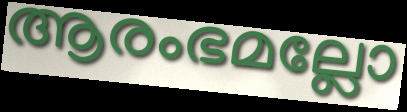
ആരംഭമല്ലോ